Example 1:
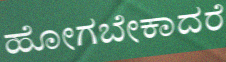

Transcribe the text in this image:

ಹೋಗಬೇಕಾದರೆ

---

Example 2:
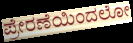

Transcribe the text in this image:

ಪ್ರೇರಣೆಯಿಂದಲೋ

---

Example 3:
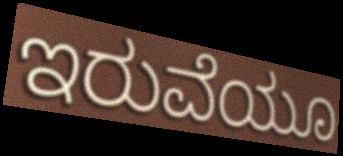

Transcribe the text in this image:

ಇರುವೆಯೂ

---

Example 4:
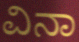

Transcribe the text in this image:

ವಿನಾ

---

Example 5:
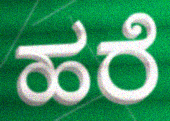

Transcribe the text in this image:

ಹರೆ